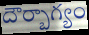
దౌర్బాగ్యం